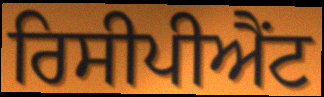
ਰਿਸੀਪੀਐਂਟ